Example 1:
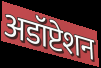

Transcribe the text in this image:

अडॉप्टेशन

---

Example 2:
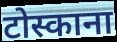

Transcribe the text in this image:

टोस्काना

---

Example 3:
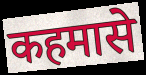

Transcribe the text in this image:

कहमासे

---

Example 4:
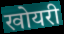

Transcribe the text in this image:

खोयरी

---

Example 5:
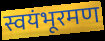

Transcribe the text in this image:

स्वयंभूरमण